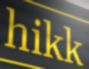
hikk